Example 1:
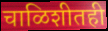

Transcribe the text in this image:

चाळिशीतही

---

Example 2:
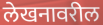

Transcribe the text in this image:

लेखनावरील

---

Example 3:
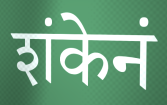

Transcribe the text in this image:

शंकेनं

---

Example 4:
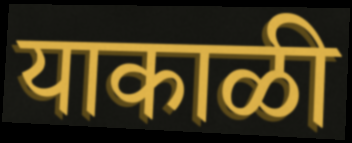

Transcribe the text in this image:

याकाळी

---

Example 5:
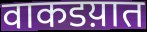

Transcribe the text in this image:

वाकडय़ात